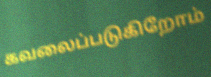
கவலைப்படுகிறோம்